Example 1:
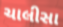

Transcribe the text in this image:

ચાલીસા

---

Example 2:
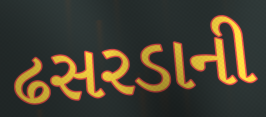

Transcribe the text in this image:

ઢસરડાની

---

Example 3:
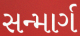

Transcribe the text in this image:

સન્માર્ગ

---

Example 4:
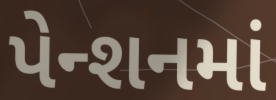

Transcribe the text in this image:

પેન્શનમાં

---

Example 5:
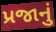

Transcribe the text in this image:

પ્રજાનું